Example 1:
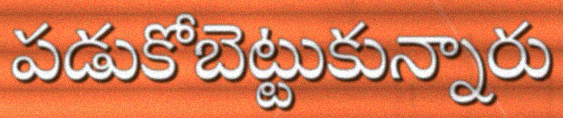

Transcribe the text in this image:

పడుకోబెట్టుకున్నారు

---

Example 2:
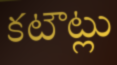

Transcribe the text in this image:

కటౌట్లు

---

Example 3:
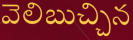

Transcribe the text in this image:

వెలిబుచ్చిన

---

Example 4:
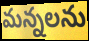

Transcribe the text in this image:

మన్నలను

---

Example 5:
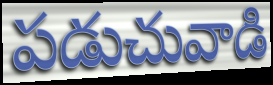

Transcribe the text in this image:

పడుచువాడి